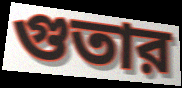
গুতার